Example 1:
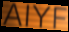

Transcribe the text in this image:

AIYF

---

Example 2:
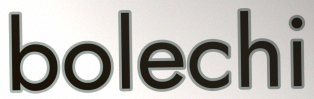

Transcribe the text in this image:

bolechi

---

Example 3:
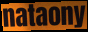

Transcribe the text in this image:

nataony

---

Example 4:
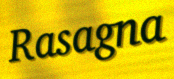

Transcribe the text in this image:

Rasagna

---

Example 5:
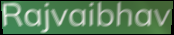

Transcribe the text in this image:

Rajvaibhav